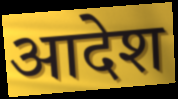
आदेश